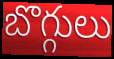
బొగ్గులు